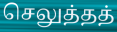
செலுத்தத்